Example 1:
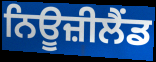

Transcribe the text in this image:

ਨਿਊਜ਼ੀਲੈਂਡ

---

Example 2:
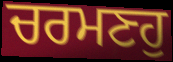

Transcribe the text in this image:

ਚਰਮਣਹੁ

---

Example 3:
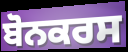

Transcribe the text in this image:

ਬੋਨਕਰਸ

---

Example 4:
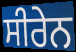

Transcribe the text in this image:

ਸੀਰੇਨ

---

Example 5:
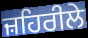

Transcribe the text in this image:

ਜ਼ਹਿਰੀਲੇ